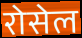
रोसेल